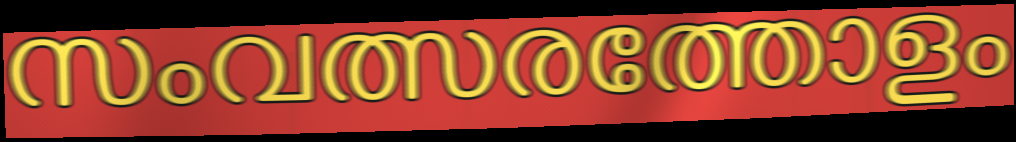
സംവത്സരത്തോളം